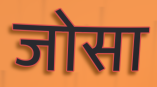
जोसा